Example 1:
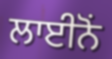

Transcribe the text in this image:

ਲਾਈਨੋਂ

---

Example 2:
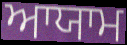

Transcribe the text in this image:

ਆਯਾਮ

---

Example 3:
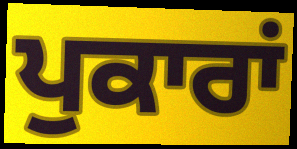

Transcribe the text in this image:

ਪੁਕਾਰਾਂ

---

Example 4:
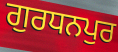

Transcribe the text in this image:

ਗੁਰਧਨਪੁਰ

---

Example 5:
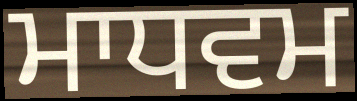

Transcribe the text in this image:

ਮਾਧਵਮ